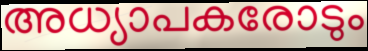
അധ്യാപകരോടും